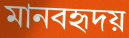
মানবহৃদয়